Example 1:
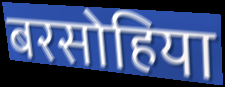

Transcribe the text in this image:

बरसोहिया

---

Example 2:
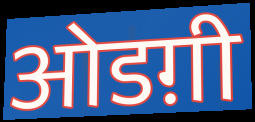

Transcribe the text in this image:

ओडग़ी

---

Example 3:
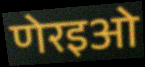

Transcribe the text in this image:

णेरइओ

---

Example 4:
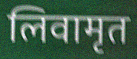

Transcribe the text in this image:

लिवामृत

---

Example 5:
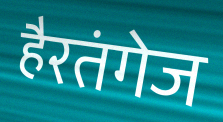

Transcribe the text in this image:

हैरतंगेज